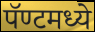
पॅण्टमध्ये